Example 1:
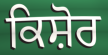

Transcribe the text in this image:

ਕਿਸ਼ੋਰ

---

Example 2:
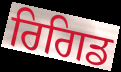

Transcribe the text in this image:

ਰਿਗਿਡ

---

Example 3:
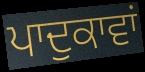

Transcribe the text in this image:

ਪਾਦੁਕਾਵਾਂ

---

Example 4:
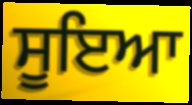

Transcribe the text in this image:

ਸੂਇਆ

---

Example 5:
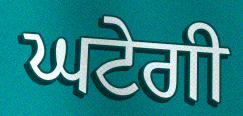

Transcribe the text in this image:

ਘਟੇਗੀ